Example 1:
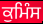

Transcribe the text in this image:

ਕੁਮਿੰਸ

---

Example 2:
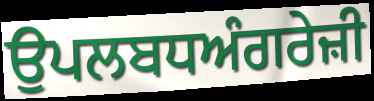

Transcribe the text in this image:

ਉਪਲਬਧਅੰਗਰੇਜ਼ੀ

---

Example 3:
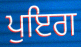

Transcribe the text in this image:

ਪੁਇਗ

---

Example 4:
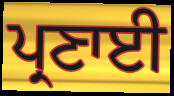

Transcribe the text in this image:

ਪ੍ਰਣਾਈ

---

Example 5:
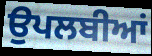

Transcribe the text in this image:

ਉਪਲਬੀਆਂ